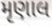
મૃણાલ